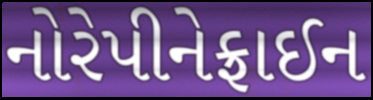
નોરેપીનેફ્રાઈન